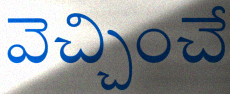
వెచ్చించే